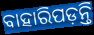
ବାହାରିପଡ଼ନ୍ତି